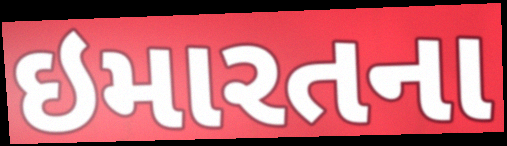
ઇમારતના